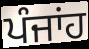
ਪੰਜਾਂਹ